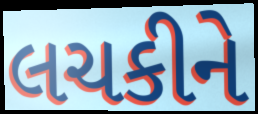
લચકીને